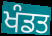
ਖੰਡਤ